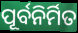
ପୂର୍ବନିର୍ମିତ